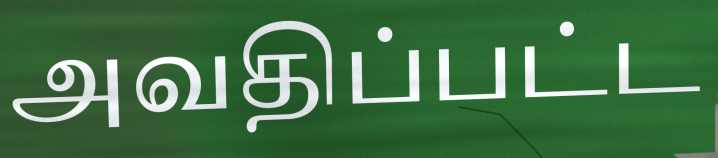
அவதிப்பட்ட